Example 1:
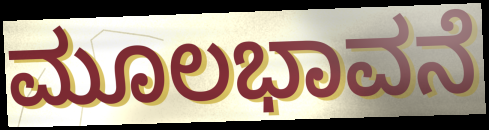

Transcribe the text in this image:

ಮೂಲಭಾವನೆ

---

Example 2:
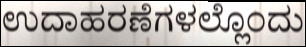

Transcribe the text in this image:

ಉದಾಹರಣೆಗಳಲ್ಲೊಂದು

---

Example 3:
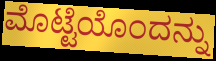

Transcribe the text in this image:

ಮೊಟ್ಟೆಯೊಂದನ್ನು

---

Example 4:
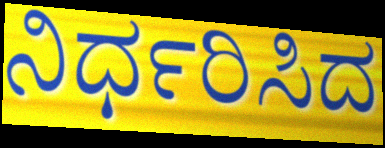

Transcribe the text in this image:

ನಿರ್ಧರಿಸಿದ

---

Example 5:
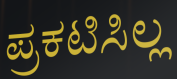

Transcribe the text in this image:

ಪ್ರಕಟಿಸಿಲ್ಲ